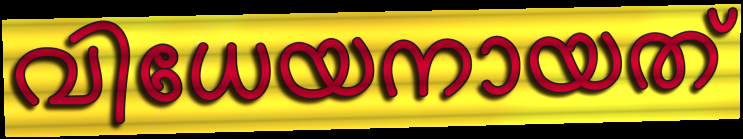
വിധേയനായത്